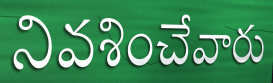
నివశించేవారు